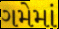
ગમેમાં